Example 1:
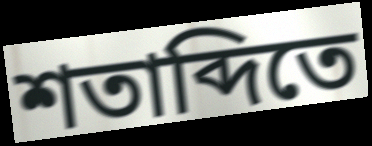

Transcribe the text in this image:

শতাব্দিতে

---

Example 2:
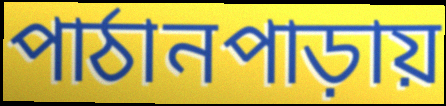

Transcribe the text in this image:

পাঠানপাড়ায়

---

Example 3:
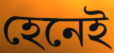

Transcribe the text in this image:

হেনেই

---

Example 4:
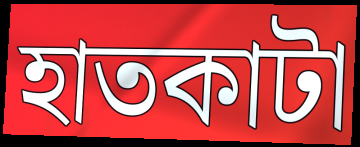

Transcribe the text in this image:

হাতকাটা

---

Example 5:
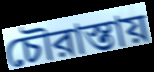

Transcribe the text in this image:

চৌরাস্তায়